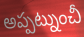
అప్పట్నుంచీ